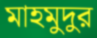
মাহমুদুর